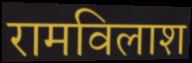
रामविलाश